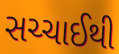
સચ્ચાઈથી